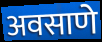
अवसाणे